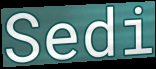
Sedi